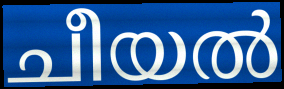
ചീയൽ